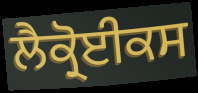
ਲੈਕ੍ਰੋਈਕਸ